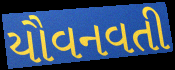
યૌવનવતી